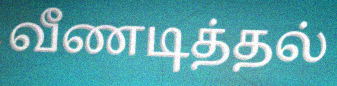
வீணடித்தல்